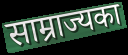
साम्राज्यका